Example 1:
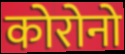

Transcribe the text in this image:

कोरोनो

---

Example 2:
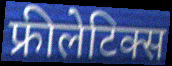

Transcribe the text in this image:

फ्रीलेटिक्स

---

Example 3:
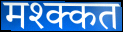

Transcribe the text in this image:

मश्क्कत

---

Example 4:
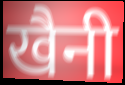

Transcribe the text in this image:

खैनी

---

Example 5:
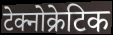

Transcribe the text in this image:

टेक्नोक्रेटिक